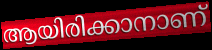
ആയിരിക്കാനാണ്